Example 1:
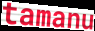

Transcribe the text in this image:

tamanu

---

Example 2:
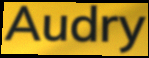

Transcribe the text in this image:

Audry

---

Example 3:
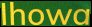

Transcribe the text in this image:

Ihowa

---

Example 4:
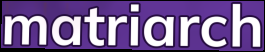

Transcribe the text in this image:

matriarch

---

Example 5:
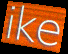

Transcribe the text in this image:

ike